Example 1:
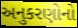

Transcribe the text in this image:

અનુકરણોનો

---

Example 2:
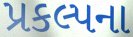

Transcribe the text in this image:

પ્રકલ્પના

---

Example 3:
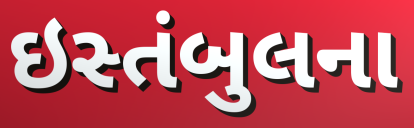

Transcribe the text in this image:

ઇસ્તંબુલના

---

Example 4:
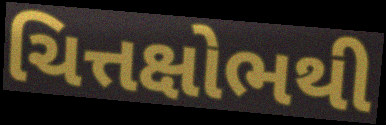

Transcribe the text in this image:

ચિત્તક્ષોભથી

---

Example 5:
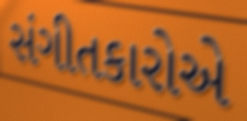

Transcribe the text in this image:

સંગીતકારોએ